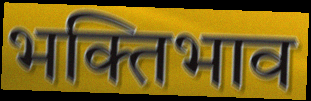
भक्तिभाव